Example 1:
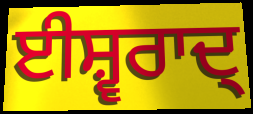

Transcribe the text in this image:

ਈਸ਼੍ਵਰਾਦ੍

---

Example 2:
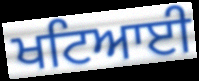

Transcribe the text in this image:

ਖਟਿਆਈ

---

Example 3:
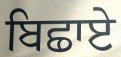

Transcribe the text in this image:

ਬਿਛਾਏ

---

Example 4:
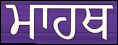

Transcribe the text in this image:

ਮਾਹਥ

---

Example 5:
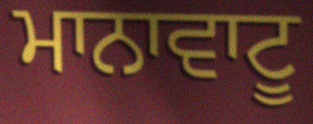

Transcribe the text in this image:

ਮਾਨਾਵਾਟੂ